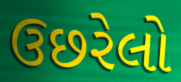
ઉછરેલો